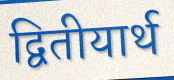
द्वितीयार्थ